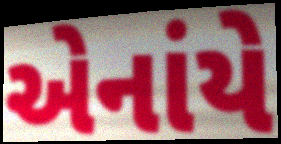
એનાંયે